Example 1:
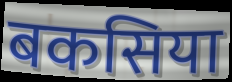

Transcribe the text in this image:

बकसिया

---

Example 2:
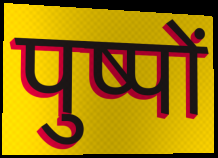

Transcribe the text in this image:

पुष्पों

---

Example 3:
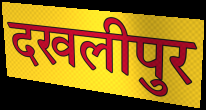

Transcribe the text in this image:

दखलीपुर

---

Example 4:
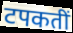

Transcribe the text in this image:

टपकतीं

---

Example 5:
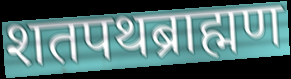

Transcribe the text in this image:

शतपथब्राह्मण